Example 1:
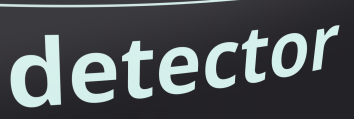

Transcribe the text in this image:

detector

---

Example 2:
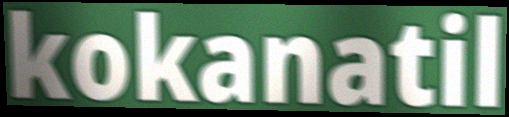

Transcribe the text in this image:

kokanatil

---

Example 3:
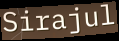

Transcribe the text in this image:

Sirajul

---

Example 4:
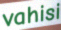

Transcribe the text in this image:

vahisi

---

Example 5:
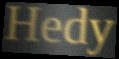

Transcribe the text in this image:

Hedy